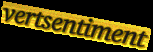
vertsentiment